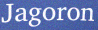
Jagoron